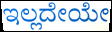
ಇಲ್ಲದೇಯೇ